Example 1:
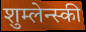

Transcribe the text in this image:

शुम्लेन्स्की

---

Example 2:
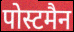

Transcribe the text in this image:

पोस्टमैन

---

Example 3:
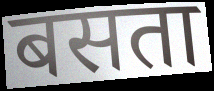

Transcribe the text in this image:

बसता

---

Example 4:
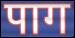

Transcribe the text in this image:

पाग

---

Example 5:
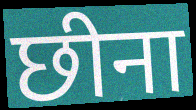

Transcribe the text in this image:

छीना